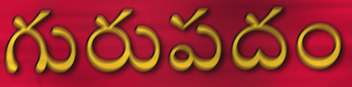
గురుపదం